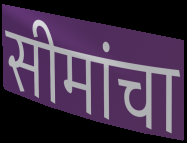
सीमांचा